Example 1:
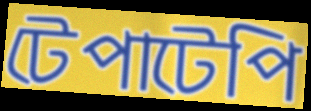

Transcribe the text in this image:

টেপাটেপি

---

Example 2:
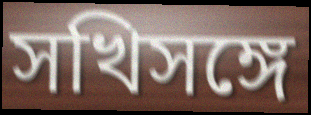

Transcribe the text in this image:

সখিসঙ্গে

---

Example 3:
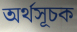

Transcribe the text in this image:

অর্থসূচক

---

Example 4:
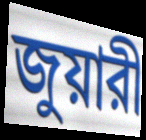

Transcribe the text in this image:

জুয়ারী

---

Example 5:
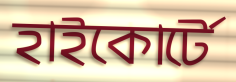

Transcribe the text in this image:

হাইকোর্টে